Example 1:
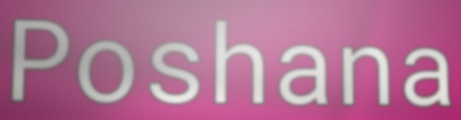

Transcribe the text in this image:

Poshana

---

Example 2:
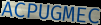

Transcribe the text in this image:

ACPUGMEC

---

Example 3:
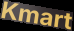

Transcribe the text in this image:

Kmart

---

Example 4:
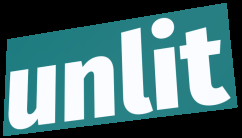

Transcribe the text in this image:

unlit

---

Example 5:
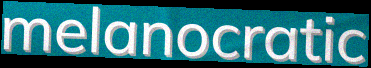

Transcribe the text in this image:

melanocratic